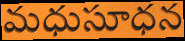
మధుసూధన